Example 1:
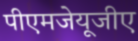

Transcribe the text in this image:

पीएमजेयूजीए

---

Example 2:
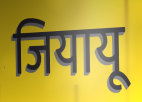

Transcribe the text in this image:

जियायू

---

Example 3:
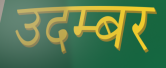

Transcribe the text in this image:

उदम्बर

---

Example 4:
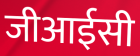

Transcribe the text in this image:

जीआईसी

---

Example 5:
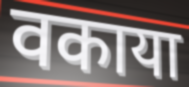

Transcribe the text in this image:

वकाया